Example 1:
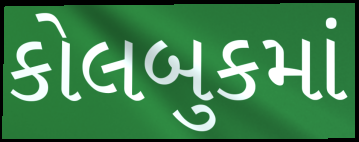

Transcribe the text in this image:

કોલબુકમાં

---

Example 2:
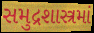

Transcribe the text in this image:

સમુદ્રશાસ્ત્રમાં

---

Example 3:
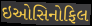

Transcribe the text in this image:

ઇઓસિનોફિલ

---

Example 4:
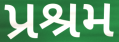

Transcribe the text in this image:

પ્રશ્રમ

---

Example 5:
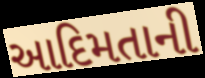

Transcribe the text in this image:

આદિમતાની